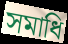
সমাধি